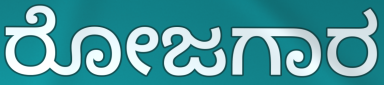
ರೋಜಗಾರ